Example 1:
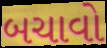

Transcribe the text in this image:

બચાવો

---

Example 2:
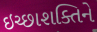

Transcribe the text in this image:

ઇચ્છાશક્તિને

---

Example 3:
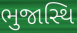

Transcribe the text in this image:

ભુજાસ્થિ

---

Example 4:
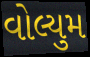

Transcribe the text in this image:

વોલ્યુમ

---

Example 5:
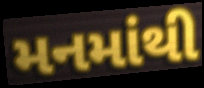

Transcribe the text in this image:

મનમાંથી